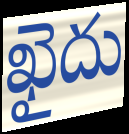
ఖైదు